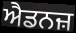
ਐਡਨਜ਼